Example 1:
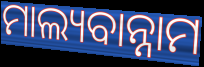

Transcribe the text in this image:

ମାଲ୍ୟବାନ୍ନାମ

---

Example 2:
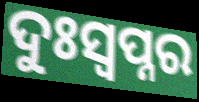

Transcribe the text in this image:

ଦୁଃସ୍ବପ୍ନର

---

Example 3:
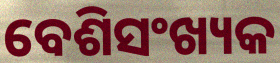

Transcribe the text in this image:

ବେଶିସଂଖ୍ୟକ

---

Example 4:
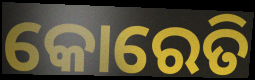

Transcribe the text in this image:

କୋରେତି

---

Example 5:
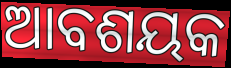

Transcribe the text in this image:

ଆବଶୟକ